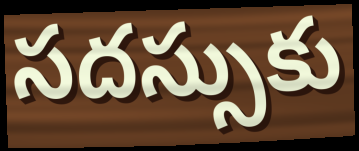
సదస్సుకు